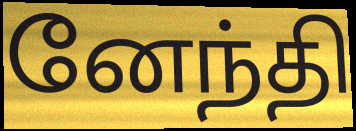
னேந்தி